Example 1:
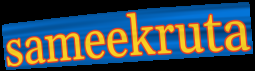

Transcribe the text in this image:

sameekruta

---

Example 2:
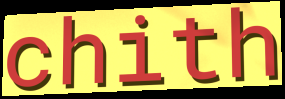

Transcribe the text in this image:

chith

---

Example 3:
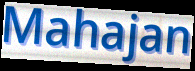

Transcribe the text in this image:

Mahajan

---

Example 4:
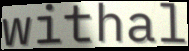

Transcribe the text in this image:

withal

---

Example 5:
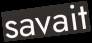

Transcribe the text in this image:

savait